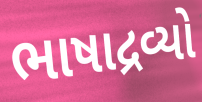
ભાષાદ્રવ્યો